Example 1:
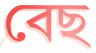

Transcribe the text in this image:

বেছ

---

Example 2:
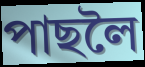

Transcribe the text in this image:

পাছলৈ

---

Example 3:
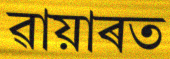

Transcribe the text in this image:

ৱায়াৰত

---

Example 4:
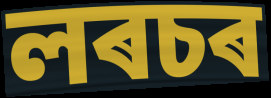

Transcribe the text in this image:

লৰচৰ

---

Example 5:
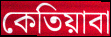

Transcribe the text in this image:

কেতিয়াবা